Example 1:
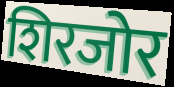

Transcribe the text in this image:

शिरजोर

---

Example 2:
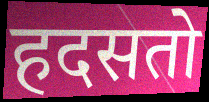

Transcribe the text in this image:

हदसतो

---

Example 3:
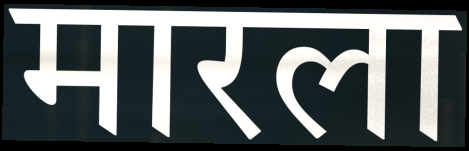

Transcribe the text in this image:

मारला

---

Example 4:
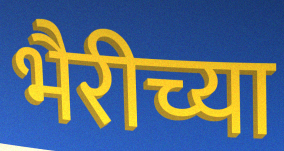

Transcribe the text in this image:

भैरीच्या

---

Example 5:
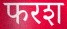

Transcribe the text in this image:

फरश